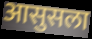
आसुसला